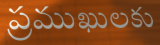
ప్రముఖులకు